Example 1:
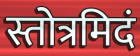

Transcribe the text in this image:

स्तोत्रमिदं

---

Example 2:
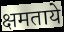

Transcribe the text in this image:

क्षमताये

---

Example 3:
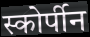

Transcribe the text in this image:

स्कोर्पीन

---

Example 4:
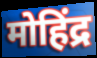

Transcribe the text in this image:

मोहिंद्र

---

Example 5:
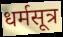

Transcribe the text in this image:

धर्मसूत्र